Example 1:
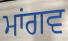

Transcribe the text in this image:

ਮਾਂਗਵ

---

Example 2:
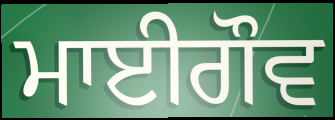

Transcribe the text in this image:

ਮਾਈਗੌਵ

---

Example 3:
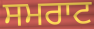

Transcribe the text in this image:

ਸਮਰਾਟ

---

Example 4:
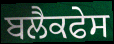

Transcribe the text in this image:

ਬਲੈਕਫੇਸ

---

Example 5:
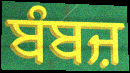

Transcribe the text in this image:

ਬੰਬਜ਼